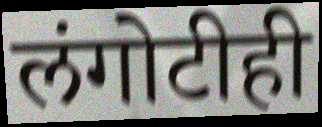
लंगोटीही